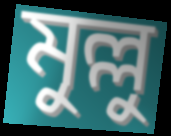
মুল্লু